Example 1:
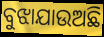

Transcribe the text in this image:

ବୁଝାଯାଉଅଛି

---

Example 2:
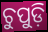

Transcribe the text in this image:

ଚୁପୁଡ଼ି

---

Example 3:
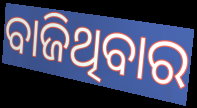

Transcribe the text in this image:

ବାଜିଥିବାର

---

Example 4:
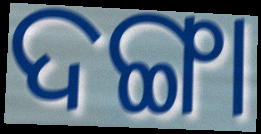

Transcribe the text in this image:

ଦଙ୍ଗା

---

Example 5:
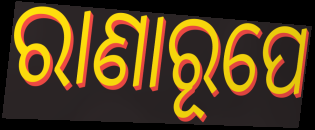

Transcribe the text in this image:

ରାଣାରୂପେ